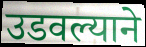
उडवल्याने